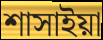
শাসাইয়া